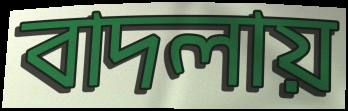
বাদলায়